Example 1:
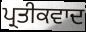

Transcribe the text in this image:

ਪ੍ਰਤੀਕਵਾਦ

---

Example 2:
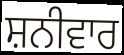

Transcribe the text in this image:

ਸ਼ਨੀਵਾਰ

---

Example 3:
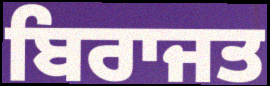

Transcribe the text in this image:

ਬਿਰਾਜਤ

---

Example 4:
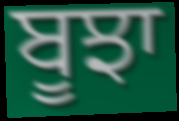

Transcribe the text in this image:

ਬੂਝਾ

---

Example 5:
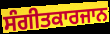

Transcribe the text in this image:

ਸੰਗੀਤਕਾਰਜਾਨ